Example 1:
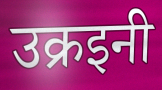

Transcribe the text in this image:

उक्रइनी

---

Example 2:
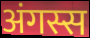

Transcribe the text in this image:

अंगस्स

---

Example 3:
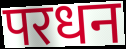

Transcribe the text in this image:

परधन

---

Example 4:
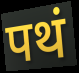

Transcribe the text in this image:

पथं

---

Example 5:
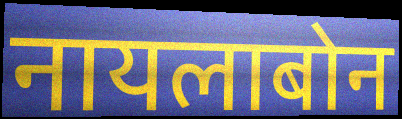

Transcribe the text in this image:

नायलाबोन